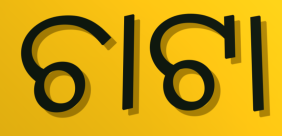
ଚାଟା